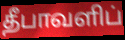
தீபாவளிப்